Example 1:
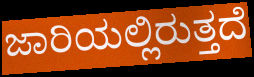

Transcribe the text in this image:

ಜಾರಿಯಲ್ಲಿರುತ್ತದೆ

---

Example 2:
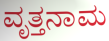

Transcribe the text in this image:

ವೃತ್ತನಾಮ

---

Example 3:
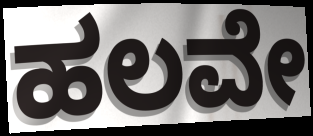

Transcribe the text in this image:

ಹಲವೇ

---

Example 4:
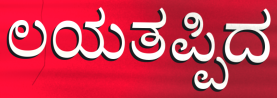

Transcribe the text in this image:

ಲಯತಪ್ಪಿದ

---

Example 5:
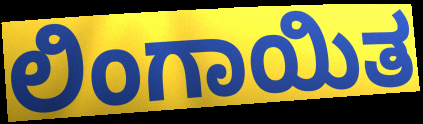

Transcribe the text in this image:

ಲಿಂಗಾಯಿತ